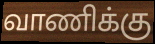
வாணிக்கு